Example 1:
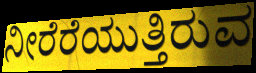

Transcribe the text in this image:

ನೀರೆರೆಯುತ್ತಿರುವ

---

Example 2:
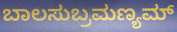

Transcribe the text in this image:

ಬಾಲಸುಬ್ರಮಣ್ಯಮ್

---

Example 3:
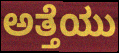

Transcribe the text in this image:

ಅತ್ತೆಯು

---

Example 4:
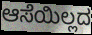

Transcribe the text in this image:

ಆಸೆಯಿಲ್ಲದ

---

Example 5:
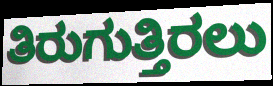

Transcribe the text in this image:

ತಿರುಗುತ್ತಿರಲು